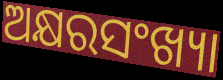
ଅକ୍ଷରସଂଖ୍ୟା